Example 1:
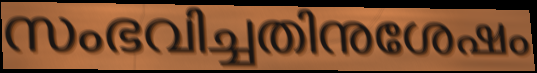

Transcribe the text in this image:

സംഭവിച്ചതിനുശേഷം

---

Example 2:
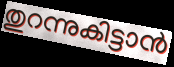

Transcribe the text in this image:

തുറന്നുകിട്ടാൻ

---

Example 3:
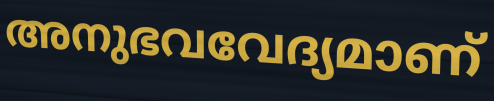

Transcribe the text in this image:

അനുഭവവേദ്യമാണ്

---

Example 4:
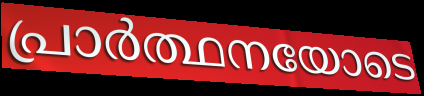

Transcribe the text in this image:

പ്രാർത്ഥനയോടെ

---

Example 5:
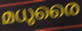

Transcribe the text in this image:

മധുരൈ